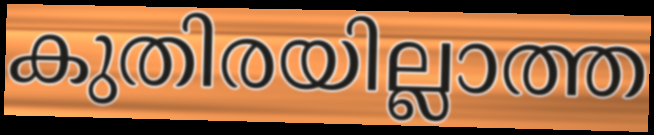
കുതിരയില്ലാത്ത